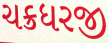
ચક્રધરજી